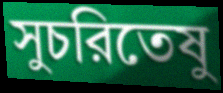
সুচরিতেষু